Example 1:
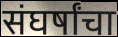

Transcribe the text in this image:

संघर्षांचा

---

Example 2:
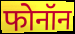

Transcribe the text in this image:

फोनॉन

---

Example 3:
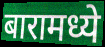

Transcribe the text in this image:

बारामध्ये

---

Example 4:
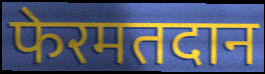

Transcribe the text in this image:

फेरमतदान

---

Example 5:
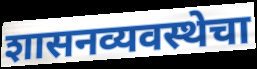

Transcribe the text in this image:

शासनव्यवस्थेचा